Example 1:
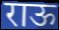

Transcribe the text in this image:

राऊ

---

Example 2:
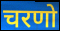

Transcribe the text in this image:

चरणो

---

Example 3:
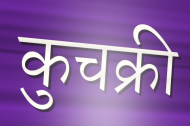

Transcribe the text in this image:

कुचक्री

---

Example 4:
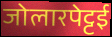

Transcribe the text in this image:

जोलारपेट्टई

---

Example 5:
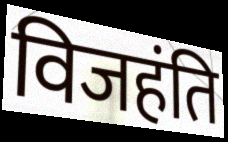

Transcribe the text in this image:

विजहंति